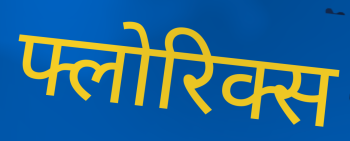
फ्लोरिक्स